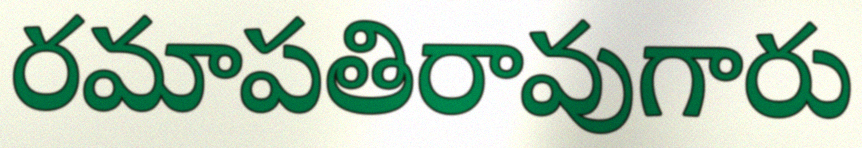
రమాపతిరావుగారు